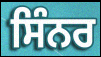
ਸਿੰਨਰ